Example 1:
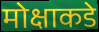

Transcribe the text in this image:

मोक्षाकडे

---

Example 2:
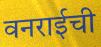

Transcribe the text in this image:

वनराईची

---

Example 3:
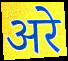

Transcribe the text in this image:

अरे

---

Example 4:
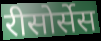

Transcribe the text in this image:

रीसोर्सेस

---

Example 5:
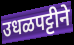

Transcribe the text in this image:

उधळपट्टीने